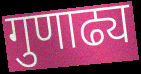
गुणाढ्य